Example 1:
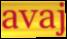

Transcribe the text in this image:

avaj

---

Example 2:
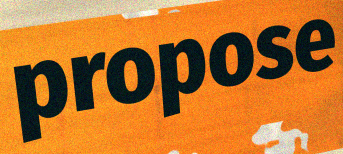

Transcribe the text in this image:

propose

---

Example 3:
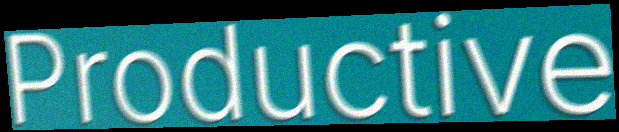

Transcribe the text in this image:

Productive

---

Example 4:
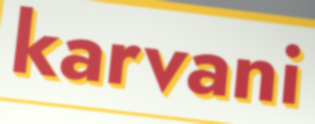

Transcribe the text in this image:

karvani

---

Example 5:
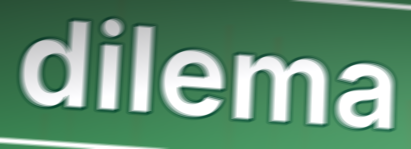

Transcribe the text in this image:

dilema